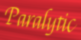
Paralytic